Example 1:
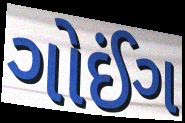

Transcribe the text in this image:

ગોઈંગ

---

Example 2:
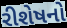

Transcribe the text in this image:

રીશેષનો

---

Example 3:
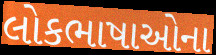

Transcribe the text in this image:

લોકભાષાઓના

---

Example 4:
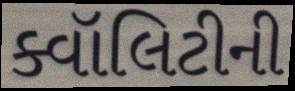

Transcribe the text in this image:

ક્વૉલિટીની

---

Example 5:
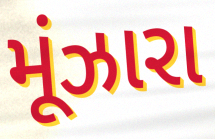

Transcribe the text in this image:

મૂંઝારા